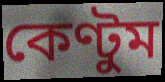
কেণ্টুম